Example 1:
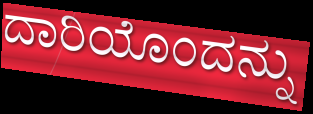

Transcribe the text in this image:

ದಾರಿಯೊಂದನ್ನು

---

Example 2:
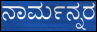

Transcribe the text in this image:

ನಾರ್ಮನ್ನರ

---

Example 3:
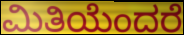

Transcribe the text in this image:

ಮಿತಿಯೆಂದರೆ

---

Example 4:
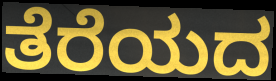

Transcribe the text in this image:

ತೆರೆಯದ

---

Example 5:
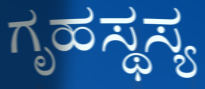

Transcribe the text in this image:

ಗೃಹಸ್ಥಸ್ಯ